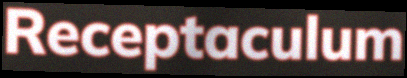
Receptaculum